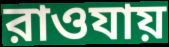
রাওযায়